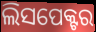
ଲିସପେକ୍ଟର